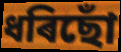
ধৰিছোঁ